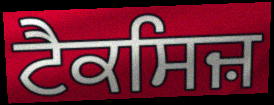
ਟੈਕਸਿਜ਼